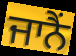
ਜਾਨੈਂ